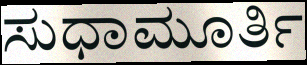
ಸುಧಾಮೂರ್ತಿ